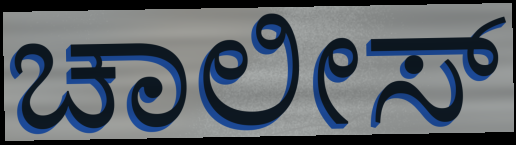
ಚಾಲೀಸ್